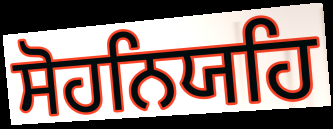
ਸੋਹਨਿਯਹਿ